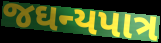
જઘન્યપાત્ર